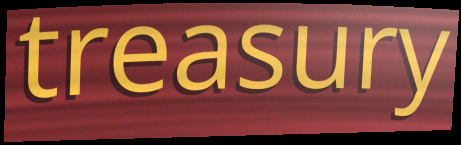
treasury